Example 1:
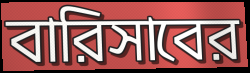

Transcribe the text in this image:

বারিসাবের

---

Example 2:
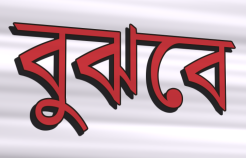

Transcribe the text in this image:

বুঝবে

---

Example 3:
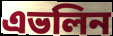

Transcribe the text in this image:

এভলিন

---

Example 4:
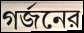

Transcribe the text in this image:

গর্জনের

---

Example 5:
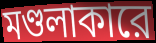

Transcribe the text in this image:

মণ্ডলাকারে